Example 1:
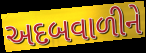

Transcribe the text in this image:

અદબવાળીને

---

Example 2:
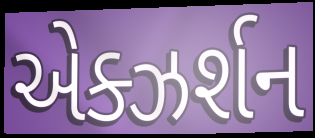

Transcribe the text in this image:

એક્ઝર્શન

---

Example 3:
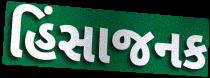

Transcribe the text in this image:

હિંસાજનક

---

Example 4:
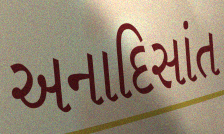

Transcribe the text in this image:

અનાદિસાંત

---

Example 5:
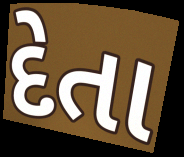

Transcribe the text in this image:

દેતા